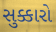
સુક્કારો